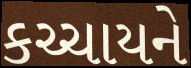
કચ્ચાયને